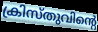
ക്രിസ്തുവിന്റെ